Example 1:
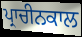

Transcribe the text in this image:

ਪ੍ਰਾਚੀਨਕਾਲ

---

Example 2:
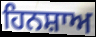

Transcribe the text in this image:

ਹਿਨਸ਼ਾਅ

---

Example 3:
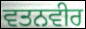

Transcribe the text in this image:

ਵਤਨਵੀਰ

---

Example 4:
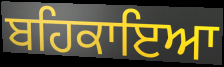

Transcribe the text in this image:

ਬਹਿਕਾਇਆ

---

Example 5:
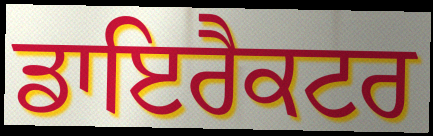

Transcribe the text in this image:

ਡਾਇਰੈਕਟਰ